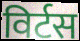
विर्टस